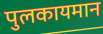
पुलकायमान